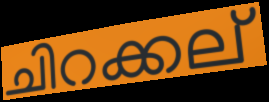
ചിറക്കല്